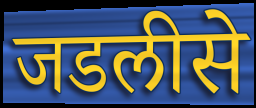
जडलीसे